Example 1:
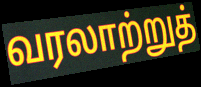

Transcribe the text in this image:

வரலாற்றுத்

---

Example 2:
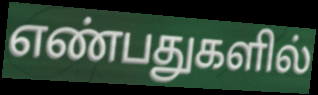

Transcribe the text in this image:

எண்பதுகளில்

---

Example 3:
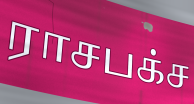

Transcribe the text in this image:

ராசபக்ச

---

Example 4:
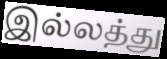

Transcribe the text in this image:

இல்லத்து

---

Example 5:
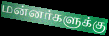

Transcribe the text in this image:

மன்னர்களுக்கு